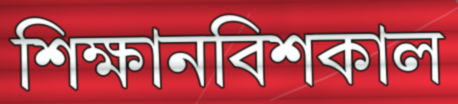
শিক্ষানবিশকাল